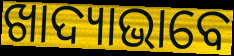
ଖାଦ୍ୟାଭାବେ